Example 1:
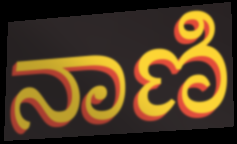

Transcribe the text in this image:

ನಾಣಿ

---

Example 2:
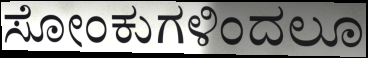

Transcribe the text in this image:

ಸೋಂಕುಗಳಿಂದಲೂ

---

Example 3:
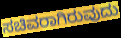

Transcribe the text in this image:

ಸಚಿವರಾಗಿರುವುದು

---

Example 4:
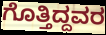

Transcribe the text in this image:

ಗೊತ್ತಿದ್ದವರ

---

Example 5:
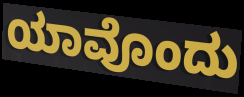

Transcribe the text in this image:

ಯಾವೊಂದು